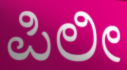
ಪಿಲೀ